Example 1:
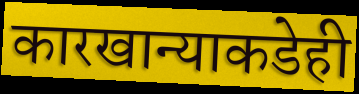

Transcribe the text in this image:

कारखान्याकडेही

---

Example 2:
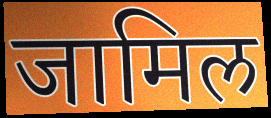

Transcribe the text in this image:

जामिल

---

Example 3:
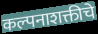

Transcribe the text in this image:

कल्पनाशक्तीचे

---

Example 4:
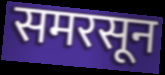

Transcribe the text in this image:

समरसून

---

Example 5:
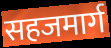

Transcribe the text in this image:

सहजमार्ग